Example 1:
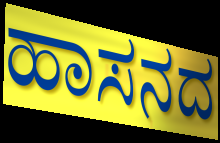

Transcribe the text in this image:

ಹಾಸನದ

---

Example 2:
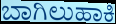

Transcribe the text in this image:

ಬಾಗಿಲುಹಾಕಿ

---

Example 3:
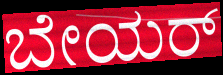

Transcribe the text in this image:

ಬೇಯರ್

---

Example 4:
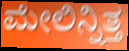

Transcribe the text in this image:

ಮೇಲಿನ್ನಿತ್ತ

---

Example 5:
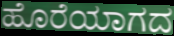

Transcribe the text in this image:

ಹೊರೆಯಾಗದ